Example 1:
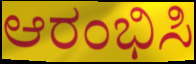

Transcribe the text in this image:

ಆರಂಭಿಸಿ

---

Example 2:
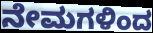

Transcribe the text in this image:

ನೇಮಗಳಿಂದ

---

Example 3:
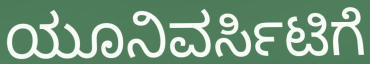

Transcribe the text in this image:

ಯೂನಿವರ್ಸಿಟಿಗೆ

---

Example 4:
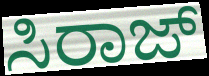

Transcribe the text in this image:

ಸಿರಾಜ್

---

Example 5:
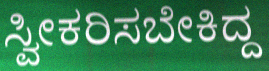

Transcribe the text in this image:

ಸ್ವೀಕರಿಸಬೇಕಿದ್ದ